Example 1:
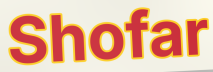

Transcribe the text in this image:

Shofar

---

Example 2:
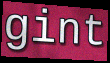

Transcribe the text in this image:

gint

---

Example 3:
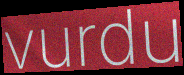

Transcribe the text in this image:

vurdu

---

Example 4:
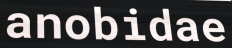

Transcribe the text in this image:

anobidae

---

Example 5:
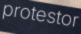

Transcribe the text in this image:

protestor